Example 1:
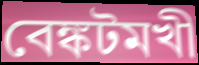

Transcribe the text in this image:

বেঙ্কটমখী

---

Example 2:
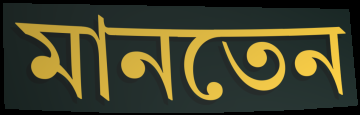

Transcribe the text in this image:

মানতেন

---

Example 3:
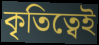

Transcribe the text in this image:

কৃতিত্বেই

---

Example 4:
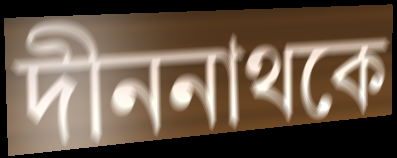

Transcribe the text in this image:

দীননাথকে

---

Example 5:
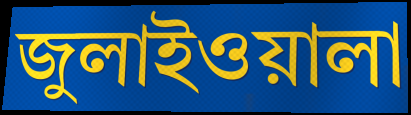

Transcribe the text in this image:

জুলাইওয়ালা